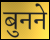
बुनने